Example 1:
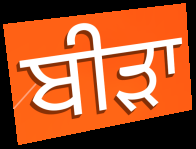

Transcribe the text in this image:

ਬੀੜਾ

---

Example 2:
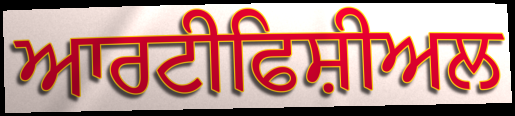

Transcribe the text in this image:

ਆਰਟੀਫਿਸ਼ੀਅਲ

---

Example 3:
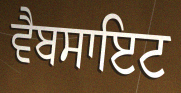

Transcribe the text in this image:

ਵੈਬਸਾਇਟ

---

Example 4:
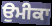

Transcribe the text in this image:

ਉਮੀਕਾ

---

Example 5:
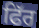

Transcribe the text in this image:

ਫਿੱਰ